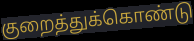
குறைத்துக்கொண்டு